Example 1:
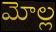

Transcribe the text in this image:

మోల్ల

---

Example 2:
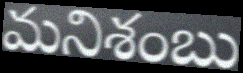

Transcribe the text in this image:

మనిశంబు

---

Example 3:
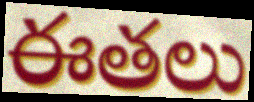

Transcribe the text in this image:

ఈతలు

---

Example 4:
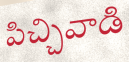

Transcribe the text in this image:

పిచ్చివాడి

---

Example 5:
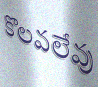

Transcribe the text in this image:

కొలవలేవు